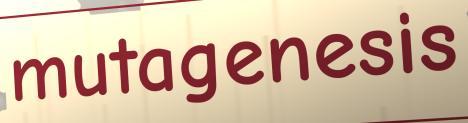
mutagenesis